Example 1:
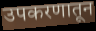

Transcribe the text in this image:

उपकरणातून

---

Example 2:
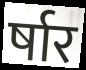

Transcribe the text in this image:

र्षार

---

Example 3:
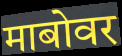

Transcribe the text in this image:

माबोवर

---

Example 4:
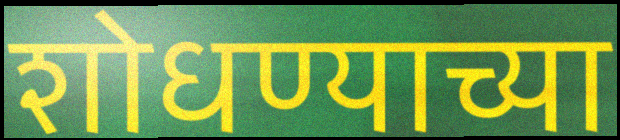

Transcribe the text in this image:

शोधण्याच्या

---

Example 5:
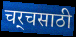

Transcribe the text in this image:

चर्चसाठी